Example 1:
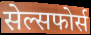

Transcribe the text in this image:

सेल्सफोर्स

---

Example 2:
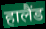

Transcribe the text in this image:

हालैंड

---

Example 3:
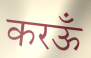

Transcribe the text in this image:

करऊँ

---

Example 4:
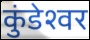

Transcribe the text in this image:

कुंडेश्वर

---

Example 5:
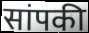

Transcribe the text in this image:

सांपकी